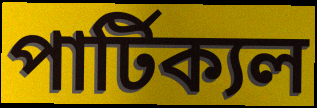
পার্টিক্যল